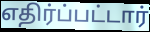
எதிர்ப்பட்டார்